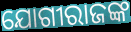
ଯୋଗୀରାଜଙ୍କ